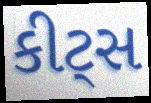
કીટ્સ